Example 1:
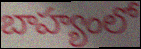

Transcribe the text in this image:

బాహ్యంలో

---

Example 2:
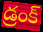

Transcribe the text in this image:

డ్రంక్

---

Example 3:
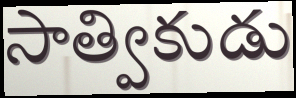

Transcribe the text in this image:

సాత్వికుడు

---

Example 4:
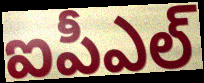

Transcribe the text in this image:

ఐపీఎల్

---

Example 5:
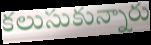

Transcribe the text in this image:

కలుసుకున్నారు